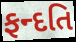
ફન્દતિ